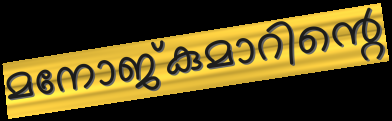
മനോജ്കുമാറിന്റെ